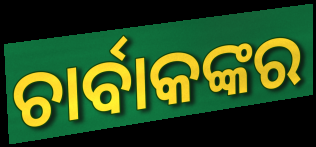
ଚାର୍ବାକଙ୍କର